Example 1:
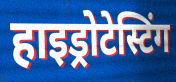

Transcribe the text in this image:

हाइड्रोटेस्टिंग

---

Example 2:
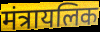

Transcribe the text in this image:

मंत्रायलिक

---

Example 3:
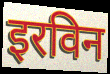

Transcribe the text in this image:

इरविन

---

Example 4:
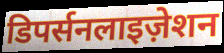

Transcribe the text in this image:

डिपर्सनलाइज़ेशन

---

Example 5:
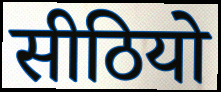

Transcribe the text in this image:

सीठियो